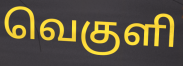
வெகுளி